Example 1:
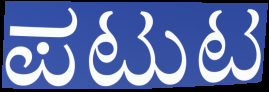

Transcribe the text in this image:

ಪಟುಟ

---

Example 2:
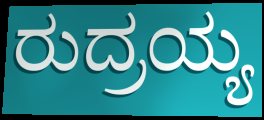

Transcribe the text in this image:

ರುದ್ರಯ್ಯ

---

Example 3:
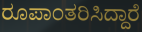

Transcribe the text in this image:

ರೂಪಾಂತರಿಸಿದ್ದಾರೆ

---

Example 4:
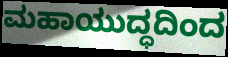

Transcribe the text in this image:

ಮಹಾಯುದ್ಧದಿಂದ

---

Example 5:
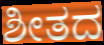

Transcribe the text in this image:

ಶೀತದ